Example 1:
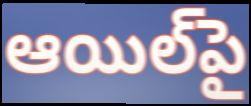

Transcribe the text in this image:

ఆయిల్‌పై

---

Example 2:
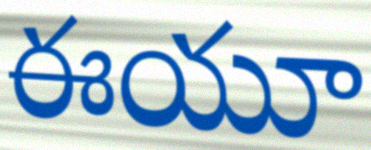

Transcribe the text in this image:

ఈయూ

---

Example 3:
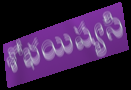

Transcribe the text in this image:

శోభయిష్యసి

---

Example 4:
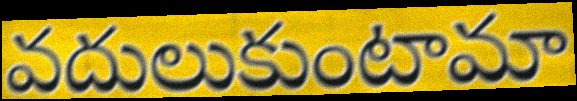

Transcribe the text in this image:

వదులుకుంటామా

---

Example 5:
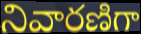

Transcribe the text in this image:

నివారణిగా